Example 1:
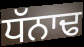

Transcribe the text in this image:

ਧੱਨਾਢ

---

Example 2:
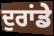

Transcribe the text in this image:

ਦੁਰਾਂਡੇ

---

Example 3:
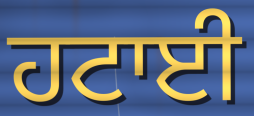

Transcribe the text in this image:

ਹਟਾਈ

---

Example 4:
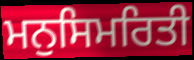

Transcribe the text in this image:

ਮਨੁਸਿਮਰਿਤੀ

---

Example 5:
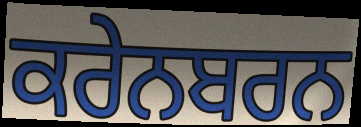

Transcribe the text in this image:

ਕਰੇਨਬਰਨ